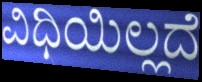
ವಿಧಿಯಿಲ್ಲದೆ